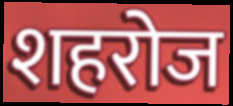
शहरोज